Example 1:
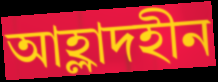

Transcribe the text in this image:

আহ্লাদহীন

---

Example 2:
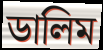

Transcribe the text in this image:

ডালিম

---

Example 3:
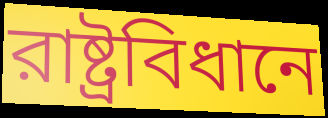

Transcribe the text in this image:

রাষ্ট্রবিধানে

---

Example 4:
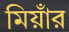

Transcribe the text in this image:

মিয়াঁর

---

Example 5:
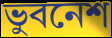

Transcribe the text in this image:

ভুবনেশ